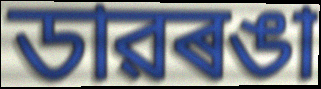
ডাৱৰঙা